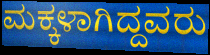
ಮಕ್ಕಳಾಗಿದ್ದವರು